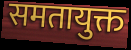
समतायुक्त